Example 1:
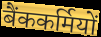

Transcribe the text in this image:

बैंककर्मियों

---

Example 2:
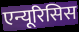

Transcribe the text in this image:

एन्यूरिसिस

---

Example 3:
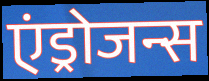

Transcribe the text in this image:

एंड्रोजन्स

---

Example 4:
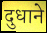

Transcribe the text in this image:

दुधाने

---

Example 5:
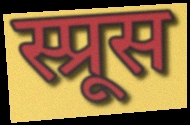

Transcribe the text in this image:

स्प्रूस